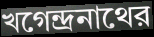
খগেন্দ্রনাথের